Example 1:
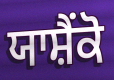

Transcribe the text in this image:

ਯਾਸ਼ੈਂਕੋ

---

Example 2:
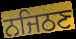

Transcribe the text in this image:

ਨਜਿਠਣ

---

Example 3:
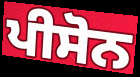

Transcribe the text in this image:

ਪੀਸੋਨ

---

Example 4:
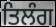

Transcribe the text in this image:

ਤਿਲੰਗ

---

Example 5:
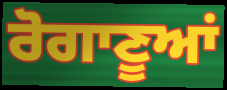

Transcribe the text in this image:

ਰੋਗਾਣੂਆਂ